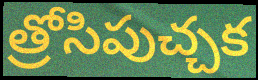
త్రోసిపుచ్చక